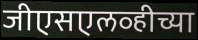
जीएसएलव्हीच्या